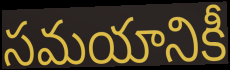
సమయానికీ